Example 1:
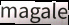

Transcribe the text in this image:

magale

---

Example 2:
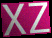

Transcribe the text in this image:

XZ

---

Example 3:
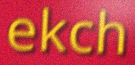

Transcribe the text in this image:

ekch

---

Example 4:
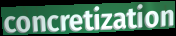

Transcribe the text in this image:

concretization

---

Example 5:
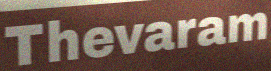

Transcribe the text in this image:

Thevaram